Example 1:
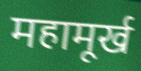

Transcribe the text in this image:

महामूर्ख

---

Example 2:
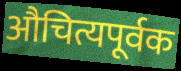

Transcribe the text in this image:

औचित्यपूर्वक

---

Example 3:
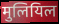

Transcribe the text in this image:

मुलियिल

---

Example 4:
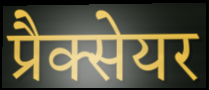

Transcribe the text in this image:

प्रैक्सेयर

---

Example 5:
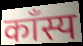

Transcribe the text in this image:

काँस्य